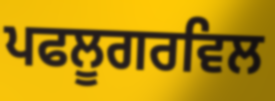
ਪਫਲੂਗਰਵਿਲ